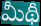
మీథీ